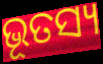
ଭୂତସ୍ୟ